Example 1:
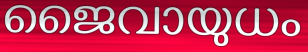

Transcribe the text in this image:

ജൈവായുധം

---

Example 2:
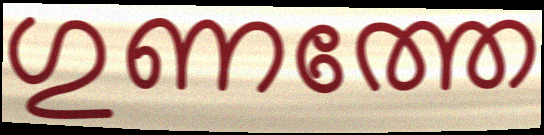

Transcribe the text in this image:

ഗുണത്തേ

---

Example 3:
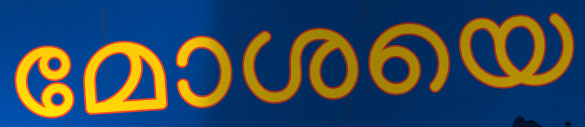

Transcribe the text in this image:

മോശയെ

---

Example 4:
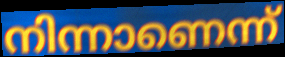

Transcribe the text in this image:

നിന്നാണെന്ന്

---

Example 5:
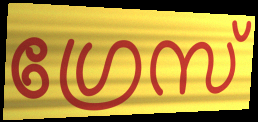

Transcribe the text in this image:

ഗ്രേസ്